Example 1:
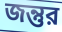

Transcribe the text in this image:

জন্তুর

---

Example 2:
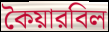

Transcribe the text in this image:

কৈয়ারবিল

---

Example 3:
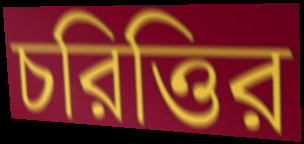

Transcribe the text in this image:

চরিত্তির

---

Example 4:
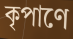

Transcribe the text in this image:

কৃপাণে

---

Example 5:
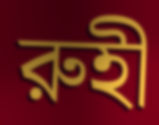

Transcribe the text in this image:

রুহী